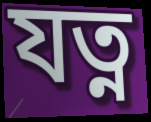
যত্ন